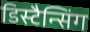
डिस्टैन्सिंग